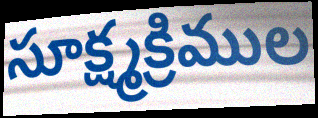
సూక్ష్మక్రిముల